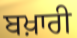
ਬਖ਼ਾਰੀ